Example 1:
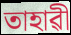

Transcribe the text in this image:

তাহাৱী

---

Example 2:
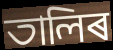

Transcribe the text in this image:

তালিৰ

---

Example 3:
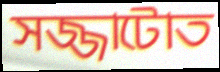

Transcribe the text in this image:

সজ্জাটোত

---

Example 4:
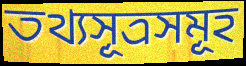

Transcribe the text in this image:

তথ্যসূত্ৰসমূহ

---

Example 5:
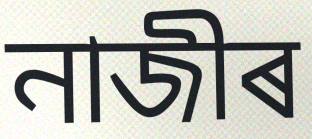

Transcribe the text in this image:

নাজীৰ